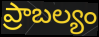
ప్రాబల్యం